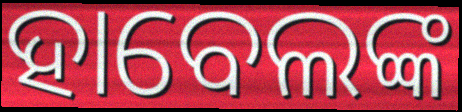
ହାବେଲଙ୍କ